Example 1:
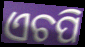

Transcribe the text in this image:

ଏଚପି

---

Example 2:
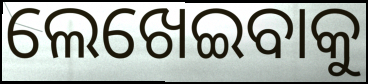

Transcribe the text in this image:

ଲେଖେଇବାକୁ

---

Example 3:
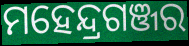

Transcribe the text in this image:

ମହେନ୍ଦ୍ରଗଞ୍ଜର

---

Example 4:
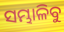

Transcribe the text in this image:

ସମ୍ଭାଳିବୁ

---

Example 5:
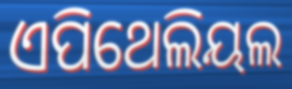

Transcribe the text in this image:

ଏପିଥେଲିୟଲ